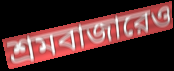
শ্রমবাজারেও